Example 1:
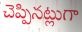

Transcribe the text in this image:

చెప్పినట్లుగా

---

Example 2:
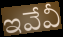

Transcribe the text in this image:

ఇవేవీ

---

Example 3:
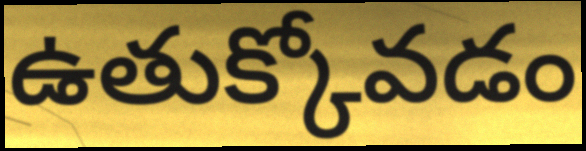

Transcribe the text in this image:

ఉతుక్కోవడం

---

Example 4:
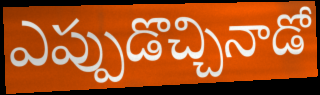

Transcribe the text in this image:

ఎప్పుడొచ్చినాడో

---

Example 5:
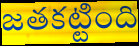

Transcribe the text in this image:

జతకట్టింది